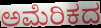
ಅಮೆರಿಕದ